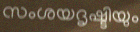
സംശയദൃഷ്ടിയും